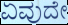
ಏವುದೇ